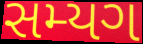
સમ્યગ